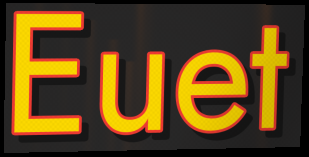
Euet